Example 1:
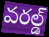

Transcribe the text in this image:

వరల్డ్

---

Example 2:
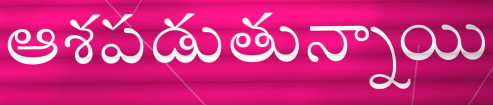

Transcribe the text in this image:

ఆశపడుతున్నాయి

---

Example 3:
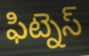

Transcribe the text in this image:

ఫిట్నెస్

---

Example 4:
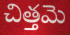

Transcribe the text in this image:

చిత్తమె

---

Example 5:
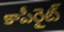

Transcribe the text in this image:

కాపీరైట్